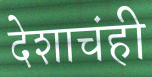
देशाचंही